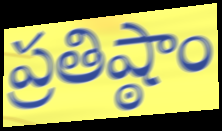
ప్రతిష్ఠాం